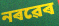
নৰৱেৰ